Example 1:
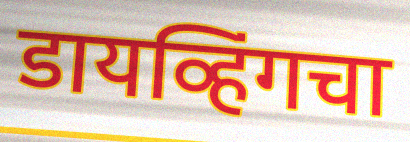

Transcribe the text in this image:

डायव्हिंगचा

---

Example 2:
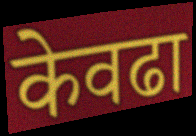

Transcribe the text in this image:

केवढा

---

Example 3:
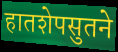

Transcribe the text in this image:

हातशेपसुतने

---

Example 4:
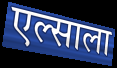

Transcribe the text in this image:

एल्साला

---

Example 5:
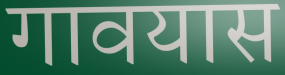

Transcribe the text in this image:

गावयास